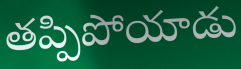
తప్పిపోయాడు